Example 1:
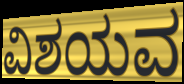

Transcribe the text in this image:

ವಿಶಯವ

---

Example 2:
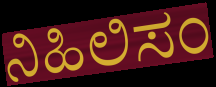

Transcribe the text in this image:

ನಿಹಿಲಿಸಂ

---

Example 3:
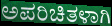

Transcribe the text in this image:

ಅಪರಿಚಿತಳಾಗಿ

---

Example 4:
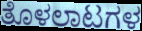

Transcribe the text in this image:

ತೊಳಲಾಟಗಳ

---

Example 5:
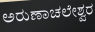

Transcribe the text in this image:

ಅರುಣಾಚಲೇಶ್ವರ